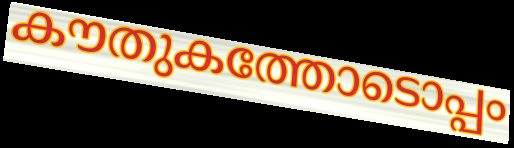
കൗതുകത്തോടൊപ്പം